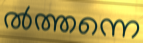
ൽത്തന്നെ